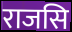
राजसि